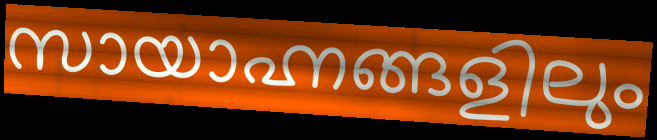
സായാഹ്നങ്ങളിലും